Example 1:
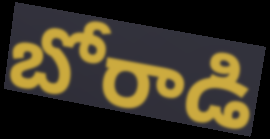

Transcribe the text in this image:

బోరాడి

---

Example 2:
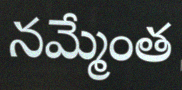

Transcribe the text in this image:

నమ్మేంత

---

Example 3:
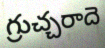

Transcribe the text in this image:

గ్రుచ్చరాదె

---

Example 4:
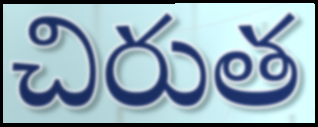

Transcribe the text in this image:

చిరుత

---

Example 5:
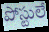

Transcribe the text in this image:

పోస్టులే